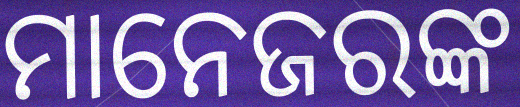
ମାନେଜରଙ୍କ